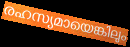
രഹസ്യമായെങ്കിലും